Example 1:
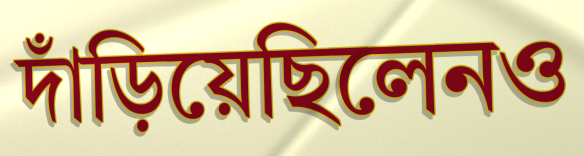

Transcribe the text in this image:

দাঁড়িয়েছিলেনও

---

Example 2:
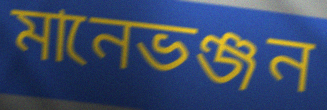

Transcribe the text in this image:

মানেভঞ্জন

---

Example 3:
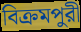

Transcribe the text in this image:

বিক্রমপুরী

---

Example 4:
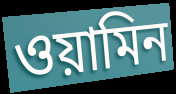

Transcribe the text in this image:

ওয়ামিন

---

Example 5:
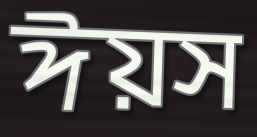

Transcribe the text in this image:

ঈয়স